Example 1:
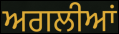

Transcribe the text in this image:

ਅਗਲੀਆਂ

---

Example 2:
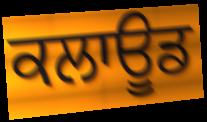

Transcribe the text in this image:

ਕਲਾਊਡ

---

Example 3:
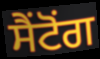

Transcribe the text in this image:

ਸੈਂਟੋਂਗ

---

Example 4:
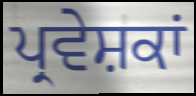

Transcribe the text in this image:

ਪ੍ਰਵੇਸ਼ਕਾਂ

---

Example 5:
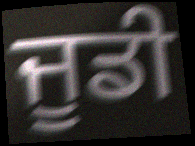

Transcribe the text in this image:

ਜੂਡੀ